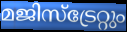
മജിസ്ട്രേറ്റും